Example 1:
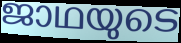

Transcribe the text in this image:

ജാഥയുടെ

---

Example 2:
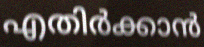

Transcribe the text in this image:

എതിർക്കാൻ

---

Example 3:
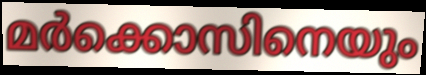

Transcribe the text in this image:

മർക്കൊസിനെയും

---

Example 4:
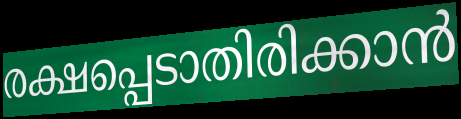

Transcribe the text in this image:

രക്ഷപ്പെടാതിരിക്കാൻ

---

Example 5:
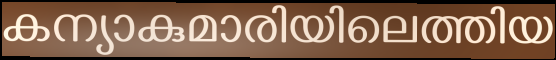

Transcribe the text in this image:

കന്യാകുമാരിയിലെത്തിയ